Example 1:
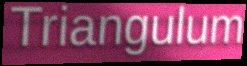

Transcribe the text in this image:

Triangulum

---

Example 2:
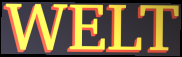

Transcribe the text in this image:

WELT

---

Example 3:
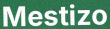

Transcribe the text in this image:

Mestizo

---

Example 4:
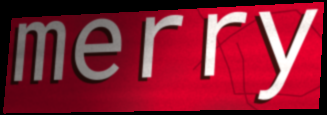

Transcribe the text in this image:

merry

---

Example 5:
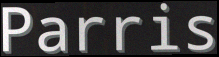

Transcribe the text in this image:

Parris